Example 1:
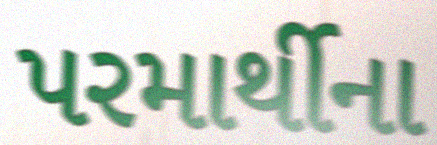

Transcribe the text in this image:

પરમાર્થીના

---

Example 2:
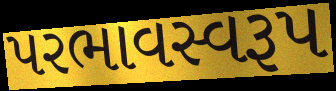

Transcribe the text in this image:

પરભાવસ્વરૂપ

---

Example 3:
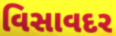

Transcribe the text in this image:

વિસાવદર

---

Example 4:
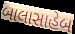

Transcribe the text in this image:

બાલાસાહેબ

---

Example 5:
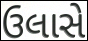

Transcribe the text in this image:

ઉલાસે